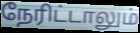
நேரிட்டாலும்